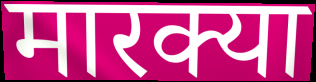
मारक्या